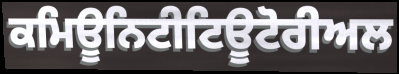
ਕਮਿਊਨਿਟੀਟਿਊਟੋਰੀਅਲ